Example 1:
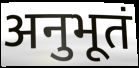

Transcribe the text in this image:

अनुभूतं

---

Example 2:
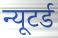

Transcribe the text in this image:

न्यूटर्ड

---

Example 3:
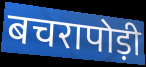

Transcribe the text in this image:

बचरापोड़ी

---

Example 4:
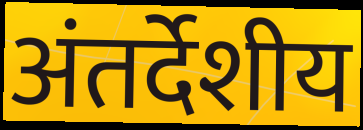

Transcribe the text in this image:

अंतर्देशीय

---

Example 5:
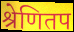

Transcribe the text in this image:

श्रेणितप